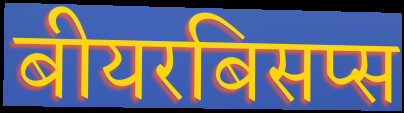
बीयरबिसप्स